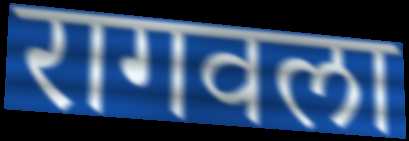
रागवला